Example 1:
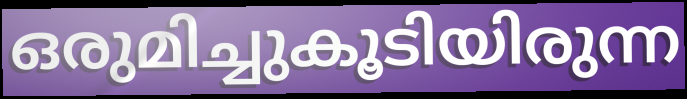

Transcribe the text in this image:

ഒരുമിച്ചുകൂടിയിരുന്ന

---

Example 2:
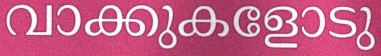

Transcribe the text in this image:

വാക്കുകളോടു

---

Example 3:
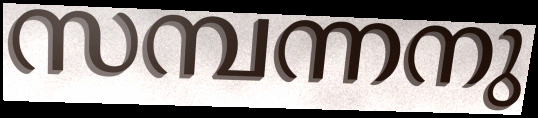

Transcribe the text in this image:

സമ്പന്നനു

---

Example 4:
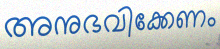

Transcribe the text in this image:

അനുഭവിക്കേണം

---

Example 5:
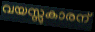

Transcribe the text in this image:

വയസ്സുകാരന്